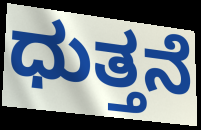
ಧುತ್ತನೆ